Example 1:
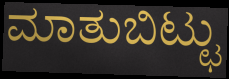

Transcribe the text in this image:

ಮಾತುಬಿಟ್ಟು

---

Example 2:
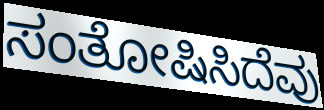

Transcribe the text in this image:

ಸಂತೋಷಿಸಿದೆವು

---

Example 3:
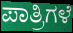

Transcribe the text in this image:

ಪಾತ್ರಿಗಳೆ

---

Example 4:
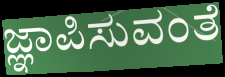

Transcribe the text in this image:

ಜ್ಞಾಪಿಸುವಂತೆ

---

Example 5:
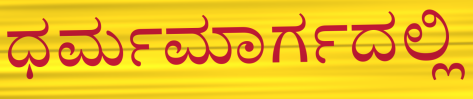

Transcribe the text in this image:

ಧರ್ಮಮಾರ್ಗದಲ್ಲಿ